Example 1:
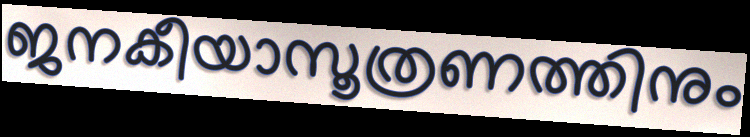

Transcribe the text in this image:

ജനകീയാസൂത്രണത്തിനും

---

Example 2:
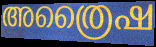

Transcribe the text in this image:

അത്രൈഷ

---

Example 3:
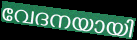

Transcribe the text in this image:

വേദനയായി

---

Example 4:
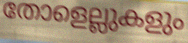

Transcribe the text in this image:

തോളെല്ലുകളും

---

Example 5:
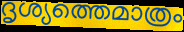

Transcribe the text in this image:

ദൃശ്യത്തെമാത്രം